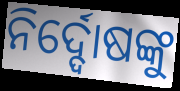
ନିର୍ଦ୍ଦୋଷଙ୍କୁ